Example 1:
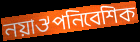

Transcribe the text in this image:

নয়াঔপনিবেশিক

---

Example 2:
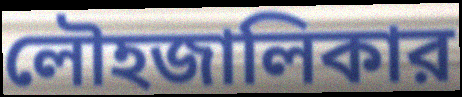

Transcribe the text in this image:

লৌহজালিকার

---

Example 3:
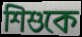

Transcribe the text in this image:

শিশুকে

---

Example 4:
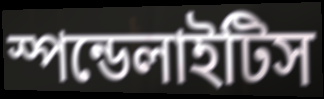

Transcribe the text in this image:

স্পন্ডেলাইটিস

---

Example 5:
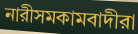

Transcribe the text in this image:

নারীসমকামবাদীরা